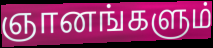
ஞானங்களும்